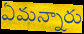
ఏమన్నారు